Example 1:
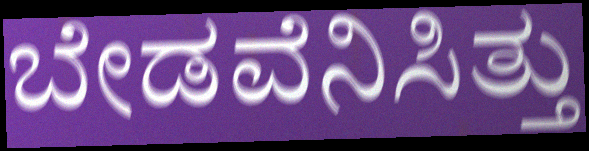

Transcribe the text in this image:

ಬೇಡವೆನಿಸಿತ್ತು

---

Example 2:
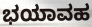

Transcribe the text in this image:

ಭಯಾವಹ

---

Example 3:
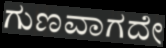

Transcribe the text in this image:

ಗುಣವಾಗದೇ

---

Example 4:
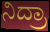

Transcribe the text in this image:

ನಿದ್ರಾ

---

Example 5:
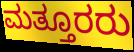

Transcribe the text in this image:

ಮತ್ತೂರರು